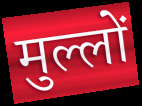
मुल्लों